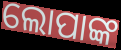
ଲୋପାଙ୍କ